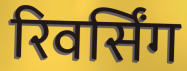
रिवर्सिंग